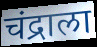
चंद्राला